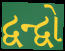
દ્વન્દ્વો